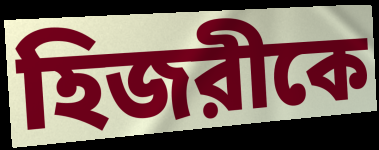
হিজরীকে